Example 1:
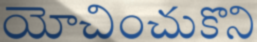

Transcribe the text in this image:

యోచించుకొని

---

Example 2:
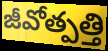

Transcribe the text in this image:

జీవోత్పత్తి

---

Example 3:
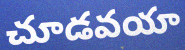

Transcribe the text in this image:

చూడవయా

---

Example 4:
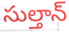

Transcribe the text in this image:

సుల్తాన్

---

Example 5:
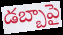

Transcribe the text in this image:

డబ్బాపై